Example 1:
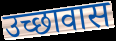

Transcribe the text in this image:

उच्छावास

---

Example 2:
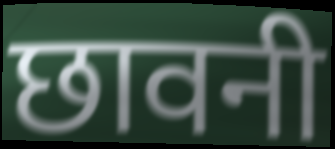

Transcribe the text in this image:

छावनी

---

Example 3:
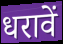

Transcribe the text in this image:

धरावें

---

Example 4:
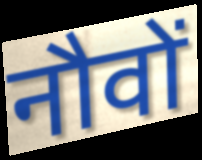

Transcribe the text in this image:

नौवों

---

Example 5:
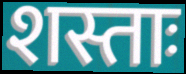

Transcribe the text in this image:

शस्ताः